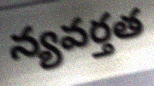
న్యవర్తత